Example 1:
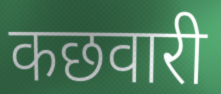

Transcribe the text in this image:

कछवारी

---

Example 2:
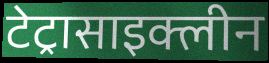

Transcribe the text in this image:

टेट्रासाइक्लीन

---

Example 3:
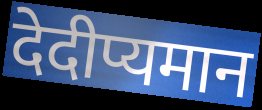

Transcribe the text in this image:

देदीप्यमान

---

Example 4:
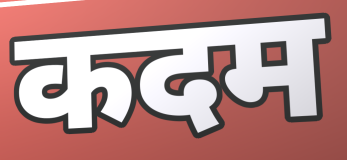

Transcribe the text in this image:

कदम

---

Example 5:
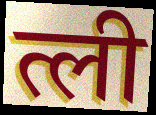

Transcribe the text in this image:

त्ली